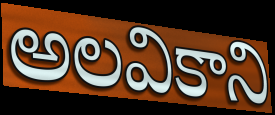
అలవికాని